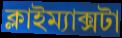
ক্লাইম্যাক্সটা